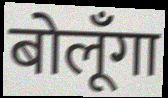
बोलूँगा